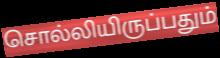
சொல்லியிருப்பதும்